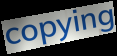
copying